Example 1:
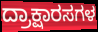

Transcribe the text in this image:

ದ್ರಾಕ್ಷಾರಸಗಳ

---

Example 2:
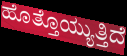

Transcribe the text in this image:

ಹೊತ್ತೊಯ್ಯುತ್ತಿದೆ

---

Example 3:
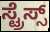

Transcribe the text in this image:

ಸ್ಟ್ರೆಸ್ಸ್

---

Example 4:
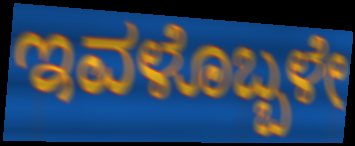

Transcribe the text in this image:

ಇವಳೊಬ್ಬಳೇ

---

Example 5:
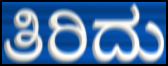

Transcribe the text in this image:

ತಿರಿದು